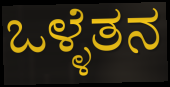
ಒಳ್ಳೆತನ